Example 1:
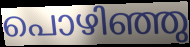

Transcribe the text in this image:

പൊഴിഞ്ഞു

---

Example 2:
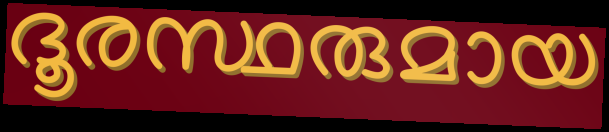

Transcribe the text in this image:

ദൂരസ്ഥരുമായ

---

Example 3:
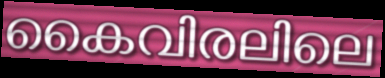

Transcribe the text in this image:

കൈവിരലിലെ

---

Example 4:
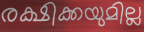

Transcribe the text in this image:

രക്ഷിക്കയുമില്ല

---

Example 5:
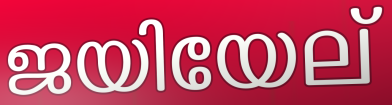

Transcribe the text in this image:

ജയിയേല്